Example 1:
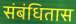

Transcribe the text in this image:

संबंधितास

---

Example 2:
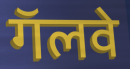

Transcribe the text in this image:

गॅलवे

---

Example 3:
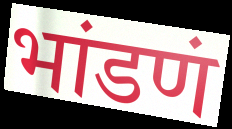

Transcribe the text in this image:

भांडणं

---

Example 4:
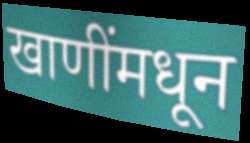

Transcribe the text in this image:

खाणींमधून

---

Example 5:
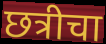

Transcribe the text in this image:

छत्रीचा